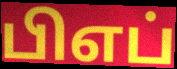
பிஎப்